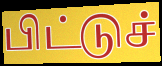
பிட்டுச்